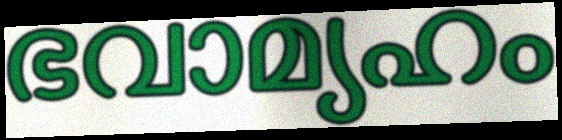
ഭവാമ്യഹം